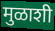
मुळाशी